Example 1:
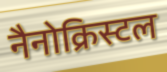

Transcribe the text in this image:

नैनोक्रिस्टल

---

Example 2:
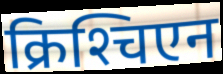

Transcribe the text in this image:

क्रिश्चिएन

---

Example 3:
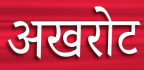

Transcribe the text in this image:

अखरोट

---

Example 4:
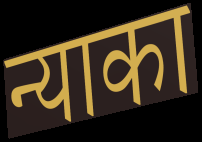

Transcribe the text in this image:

न्याका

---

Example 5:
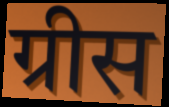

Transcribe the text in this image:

ग्रीस